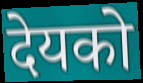
देयको